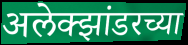
अलेक्झांडरच्या